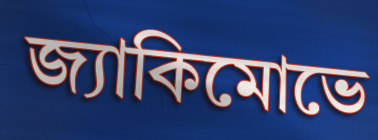
জ্যাকিমোভে